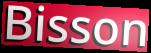
Bisson